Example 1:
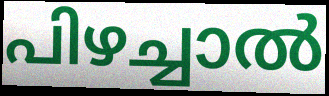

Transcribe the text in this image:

പിഴച്ചാൽ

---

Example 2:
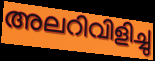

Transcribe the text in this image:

അലറിവിളിച്ചു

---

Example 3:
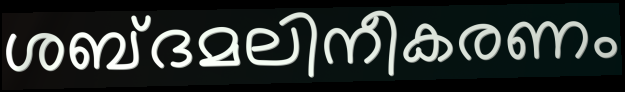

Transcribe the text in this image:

ശബ്ദമലിനീകരണം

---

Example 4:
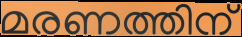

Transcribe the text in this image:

മരണത്തിന്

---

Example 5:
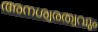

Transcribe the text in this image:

അനശ്വരത്വവും